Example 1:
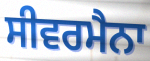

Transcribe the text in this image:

ਸੀਵਰਮੈਨਾ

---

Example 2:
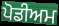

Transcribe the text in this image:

ਪੋਡੀਅਮ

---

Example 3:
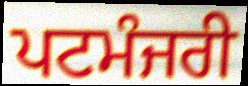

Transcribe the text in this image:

ਪਟਮੰਜਰੀ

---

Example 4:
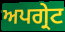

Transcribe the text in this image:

ਅਪਗ੍ਰੇਟ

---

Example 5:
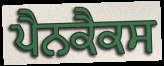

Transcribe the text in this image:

ਪੈਨਕੈਕਸ